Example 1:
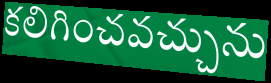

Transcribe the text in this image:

కలిగించవచ్చును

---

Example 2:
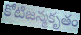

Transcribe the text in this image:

కోటిజన్మకృతం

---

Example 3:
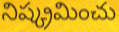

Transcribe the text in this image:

నిష్క్రమించు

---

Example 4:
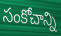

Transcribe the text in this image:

సంకోచాన్ని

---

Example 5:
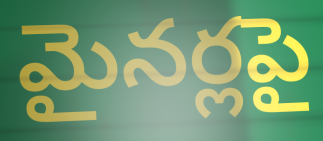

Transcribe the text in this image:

మైనర్లపై